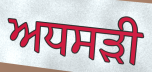
ਅਧਸੜੀ